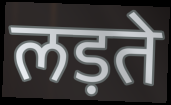
लड़ते